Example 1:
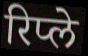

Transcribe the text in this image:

रिप्ले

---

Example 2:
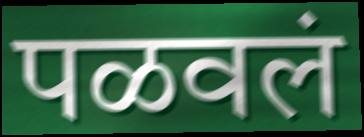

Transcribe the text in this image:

पळवलं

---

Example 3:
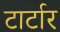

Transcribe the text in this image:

टार्टार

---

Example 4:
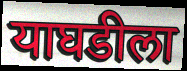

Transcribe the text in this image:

याघडीला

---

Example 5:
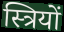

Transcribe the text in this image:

स्त्रियों